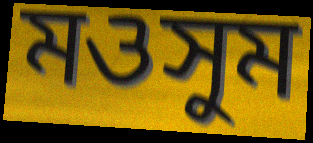
মওসুম